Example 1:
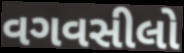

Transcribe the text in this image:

વગવસીલો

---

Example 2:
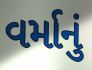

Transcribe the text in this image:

વર્માનું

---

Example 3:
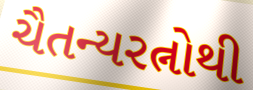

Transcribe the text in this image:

ચૈતન્યરત્નોથી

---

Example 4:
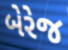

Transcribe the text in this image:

બેરેજ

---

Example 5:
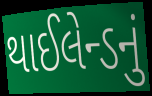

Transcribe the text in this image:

થાઈલેન્ડનું